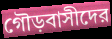
গৌড়বাসীদের